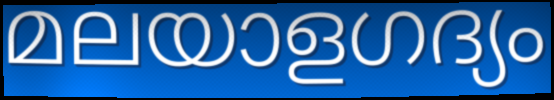
മലയാളഗദ്യം